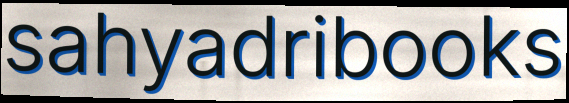
sahyadribooks